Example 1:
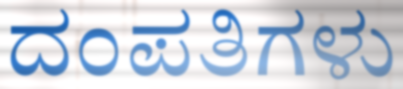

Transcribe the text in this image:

ದಂಪತಿಗಳು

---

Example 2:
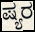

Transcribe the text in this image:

ಷ್ಯರ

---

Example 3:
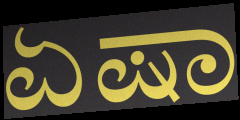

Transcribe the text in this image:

ಏಷಾ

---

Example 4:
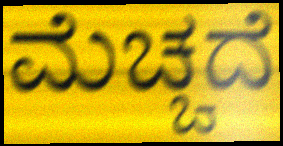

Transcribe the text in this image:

ಮೆಚ್ಚದೆ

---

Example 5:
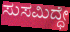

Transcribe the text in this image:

ಸುಸಮಿದ್ಧೇ